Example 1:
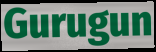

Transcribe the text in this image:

Gurugun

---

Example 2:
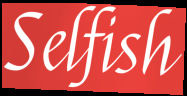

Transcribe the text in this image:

Selfish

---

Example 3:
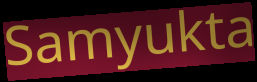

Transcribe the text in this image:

Samyukta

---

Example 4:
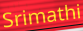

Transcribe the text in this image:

Srimathi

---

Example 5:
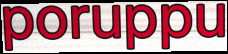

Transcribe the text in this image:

poruppu